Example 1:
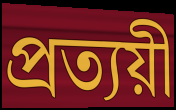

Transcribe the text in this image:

প্ৰত্যয়ী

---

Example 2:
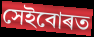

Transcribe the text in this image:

সেইবোৰত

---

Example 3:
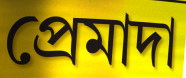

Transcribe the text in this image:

প্ৰেমাদা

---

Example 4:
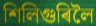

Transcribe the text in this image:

শিলিগুৰিলৈ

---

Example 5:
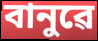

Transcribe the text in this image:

বানুৱে